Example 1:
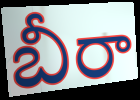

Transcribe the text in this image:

బీరా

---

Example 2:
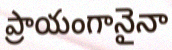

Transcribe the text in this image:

ప్రాయంగానైనా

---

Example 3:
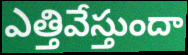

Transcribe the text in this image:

ఎత్తివేస్తుందా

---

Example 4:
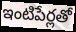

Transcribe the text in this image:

ఇంటిపేర్లతో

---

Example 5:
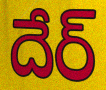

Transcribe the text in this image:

దేర్